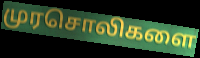
முரசொலிகளை